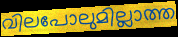
വിലപോലുമില്ലാത്ത